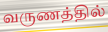
வருணத்தில்